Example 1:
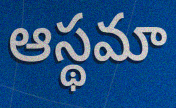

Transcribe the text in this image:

ఆస్థమా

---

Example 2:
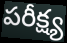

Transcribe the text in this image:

పరీక్ష్య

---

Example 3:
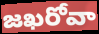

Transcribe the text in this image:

జఖరోవా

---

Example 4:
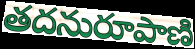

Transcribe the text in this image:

తదనురూపాణి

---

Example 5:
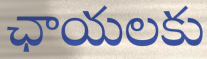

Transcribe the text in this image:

ఛాయలకు